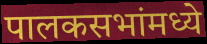
पालकसभांमध्ये